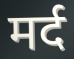
मर्द